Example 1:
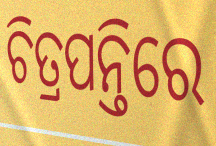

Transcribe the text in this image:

ଚିତ୍ରପନ୍ତିରେ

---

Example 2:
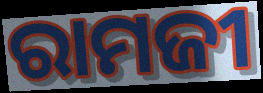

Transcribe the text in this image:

ରାମଜୀ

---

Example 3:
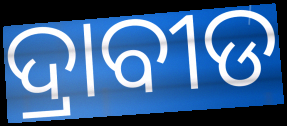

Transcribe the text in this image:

ଦ୍ରାବୀଡ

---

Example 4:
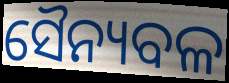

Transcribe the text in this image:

ସୈନ୍ୟବଳ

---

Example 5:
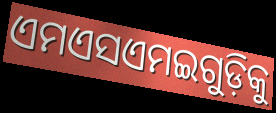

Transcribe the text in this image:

ଏମଏସଏମଇଗୁଡ଼ିକୁ